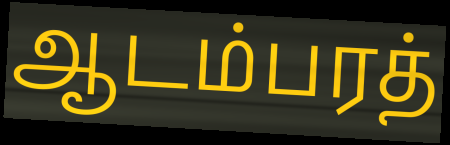
ஆடம்பரத்